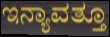
ಇನ್ಯಾವತ್ತೂ